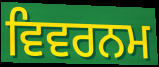
ਵਿਵਰਨਮ